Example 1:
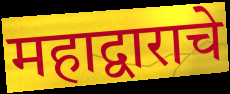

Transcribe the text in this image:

महाद्वाराचे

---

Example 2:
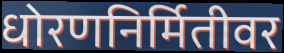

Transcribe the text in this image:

धोरणनिर्मितीवर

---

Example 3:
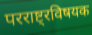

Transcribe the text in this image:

परराष्ट्रविषयक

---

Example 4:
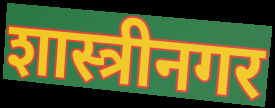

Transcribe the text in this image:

शास्त्रीनगर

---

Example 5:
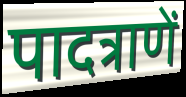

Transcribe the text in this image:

पादत्राणें